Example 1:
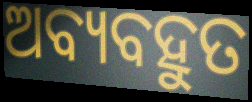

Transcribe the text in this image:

ଅବ୍ୟବହୁତ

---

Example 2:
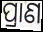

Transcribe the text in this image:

ପ୍ରାଣ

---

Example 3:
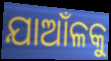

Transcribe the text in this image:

ଯାଆଁଳକୁ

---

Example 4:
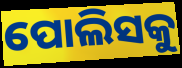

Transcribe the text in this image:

ପୋଲିସକୁ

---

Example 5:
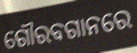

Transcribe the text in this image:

ଗୌରବଗାନରେ